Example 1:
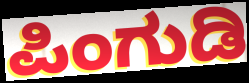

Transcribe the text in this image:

ಪಿಂಗುಡಿ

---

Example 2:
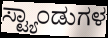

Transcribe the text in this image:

ಸ್ಟ್ಯಾಂಡುಗಳ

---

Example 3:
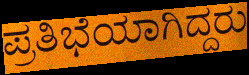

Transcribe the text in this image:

ಪ್ರತಿಭೆಯಾಗಿದ್ದರು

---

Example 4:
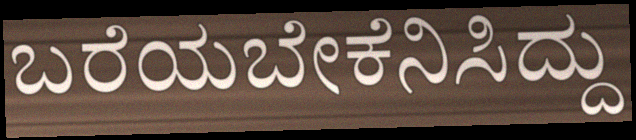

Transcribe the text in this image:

ಬರೆಯಬೇಕೆನಿಸಿದ್ದು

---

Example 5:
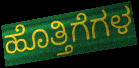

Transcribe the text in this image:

ಹೊತ್ತಿಗೆಗಳ